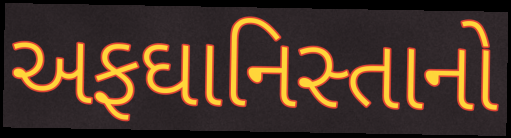
અફઘાનિસ્તાનો